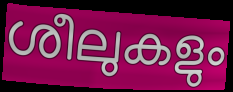
ശീലുകളും